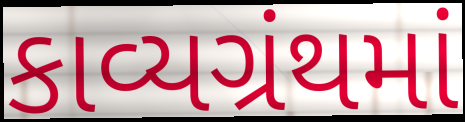
કાવ્યગ્રંથમાં